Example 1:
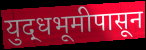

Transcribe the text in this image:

युद्धभूमीपासून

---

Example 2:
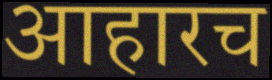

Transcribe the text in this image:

आहारच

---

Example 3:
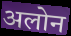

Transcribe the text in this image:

अलोन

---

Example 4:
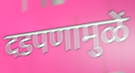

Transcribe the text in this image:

दडपणामुळें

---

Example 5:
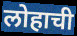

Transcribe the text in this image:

लोहाची